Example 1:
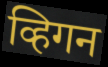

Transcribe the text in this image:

व्हिगन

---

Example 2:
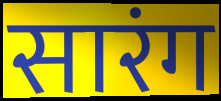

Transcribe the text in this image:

सारंग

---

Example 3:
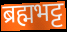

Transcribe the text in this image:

ब्रह्मभट्ट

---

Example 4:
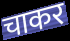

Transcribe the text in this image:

चाकर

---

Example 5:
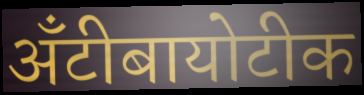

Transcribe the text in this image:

अँटीबायोटीक